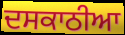
ਦਸਕਾਠੀਆ